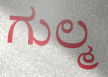
ಗುಲ್ಮ